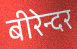
बीरेन्दर